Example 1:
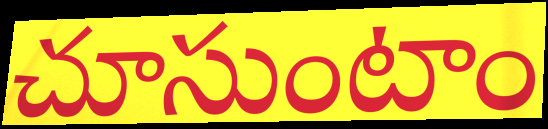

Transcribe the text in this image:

చూసుంటాం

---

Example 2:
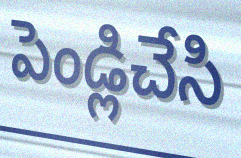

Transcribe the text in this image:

పెండ్లిచేసి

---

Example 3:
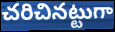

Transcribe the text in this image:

చరిచినట్టుగా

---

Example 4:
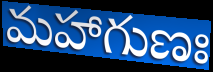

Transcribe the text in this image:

మహాగుణః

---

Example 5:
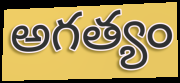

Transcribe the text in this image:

అగత్యం